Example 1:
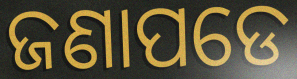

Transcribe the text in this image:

ଜଣାପଡେ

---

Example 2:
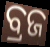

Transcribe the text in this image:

ବ୍ରଜ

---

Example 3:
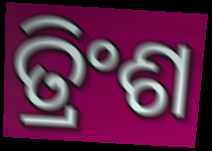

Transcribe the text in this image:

ତ୍ରିଂଶ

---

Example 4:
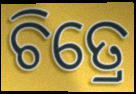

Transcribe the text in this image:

ଚିତ୍ରେ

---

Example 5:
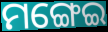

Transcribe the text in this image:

ମଙ୍ଗେଇ